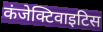
कंजेक्टिवाइटिस